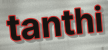
tanthi